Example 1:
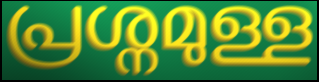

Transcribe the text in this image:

പ്രശ്നമുള്ള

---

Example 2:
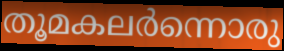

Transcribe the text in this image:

തൂമകലർന്നൊരു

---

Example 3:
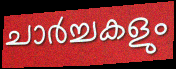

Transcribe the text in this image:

ചാർച്ചകളും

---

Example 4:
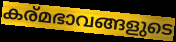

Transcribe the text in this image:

കര്മഭാവങ്ങളുടെ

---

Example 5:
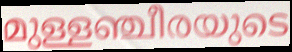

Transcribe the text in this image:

മുള്ളഞ്ചീരയുടെ